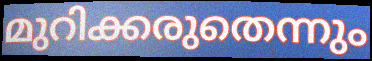
മുറിക്കരുതെന്നും